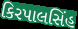
કિરપાલસિંહ